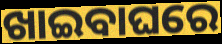
ଖାଇବାଘରେ